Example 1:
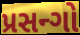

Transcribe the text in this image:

પ્રસન્ગો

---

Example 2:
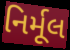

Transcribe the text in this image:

નિર્મૂલ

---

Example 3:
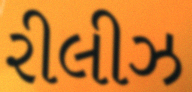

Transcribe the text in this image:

રીલીઝ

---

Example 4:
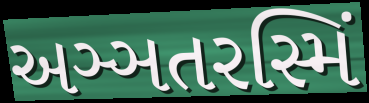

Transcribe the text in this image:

અઞ્ઞતરસ્મિં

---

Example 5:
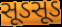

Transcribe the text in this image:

સૂડસૂડ